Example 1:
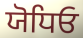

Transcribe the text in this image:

ਯੋਧਿਓ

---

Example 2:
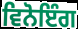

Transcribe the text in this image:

ਵਿਨੋਇੰਗ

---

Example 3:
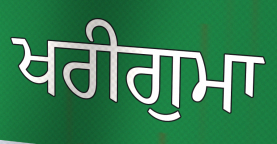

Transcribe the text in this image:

ਖਰੀਗੁਮਾ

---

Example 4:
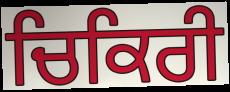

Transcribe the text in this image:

ਚਿਕਿਰੀ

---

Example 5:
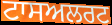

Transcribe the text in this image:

ਟਾਸਅਲਰਟ